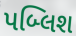
પબ્લિશ